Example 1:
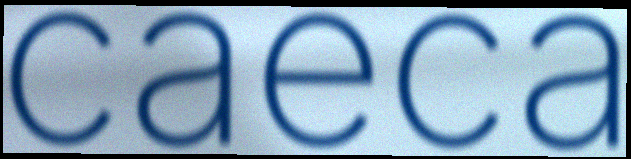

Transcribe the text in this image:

caeca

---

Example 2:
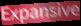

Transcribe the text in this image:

Expansive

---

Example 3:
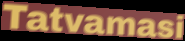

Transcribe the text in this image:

Tatvamasi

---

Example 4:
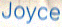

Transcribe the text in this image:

Joyce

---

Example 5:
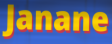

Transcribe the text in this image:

Janane